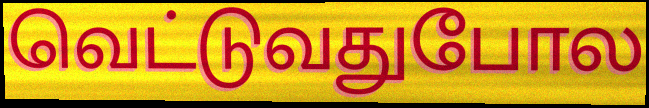
வெட்டுவதுபோல